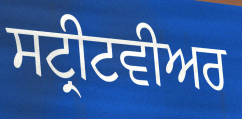
ਸਟ੍ਰੀਟਵੀਅਰ